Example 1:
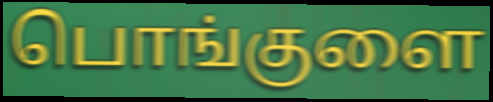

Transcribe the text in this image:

பொங்குளை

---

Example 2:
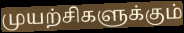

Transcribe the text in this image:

முயற்சிகளுக்கும்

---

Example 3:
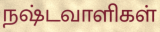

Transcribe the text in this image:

நஷ்டவாளிகள்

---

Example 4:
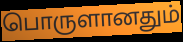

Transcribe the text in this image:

பொருளானதும்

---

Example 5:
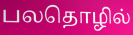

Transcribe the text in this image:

பலதொழில்